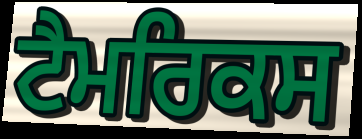
ਟੈਮਰਿਕਸ